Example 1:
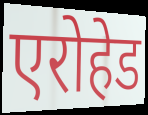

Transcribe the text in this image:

एरोहेड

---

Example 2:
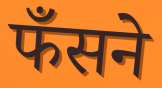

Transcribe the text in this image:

फँसने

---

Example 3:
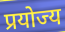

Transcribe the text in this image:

प्रयोज्य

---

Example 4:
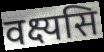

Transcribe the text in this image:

वक्ष्यसि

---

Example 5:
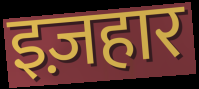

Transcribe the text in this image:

इज़हार